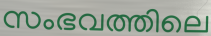
സംഭവത്തിലെ